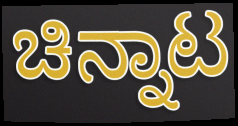
ಚಿನ್ನಾಟ